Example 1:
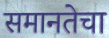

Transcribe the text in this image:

समानतेचा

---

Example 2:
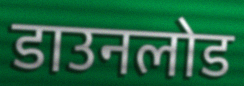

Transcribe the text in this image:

डाउनलोड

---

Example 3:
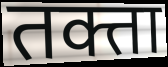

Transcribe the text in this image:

तक्ता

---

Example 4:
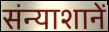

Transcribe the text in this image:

संन्याशानें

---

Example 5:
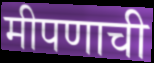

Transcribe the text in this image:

मीपणाची